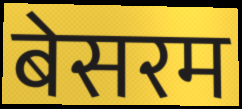
बेसरम